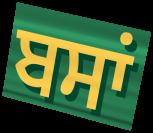
ਬਸਾਂ